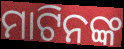
ମାଟିନଙ୍କ